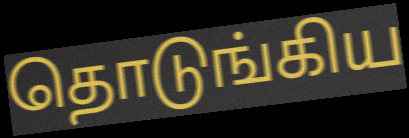
தொடுங்கிய